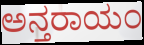
ಅನ್ತರಾಯಂ